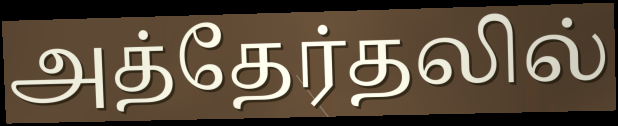
அத்தேர்தலில்